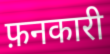
फ़नकारी